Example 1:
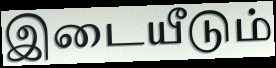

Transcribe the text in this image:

இடையீடும்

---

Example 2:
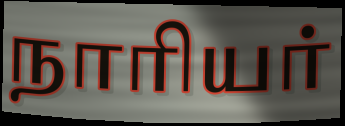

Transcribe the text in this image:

நாரியர்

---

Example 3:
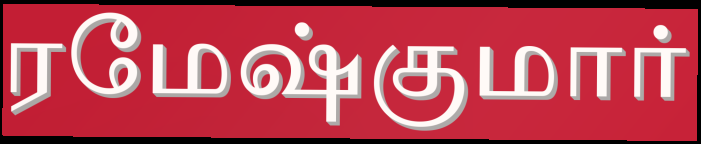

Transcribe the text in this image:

ரமேஷ்குமார்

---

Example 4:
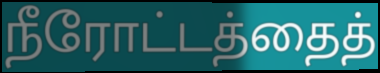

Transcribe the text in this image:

நீரோட்டத்தைத்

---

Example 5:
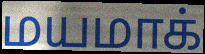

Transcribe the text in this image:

மயமாக்